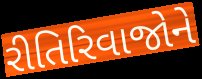
રીતિરિવાજોને